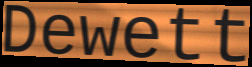
Dewett